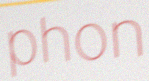
phon